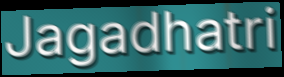
Jagadhatri